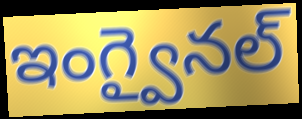
ఇంగ్వైనల్